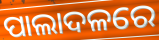
ପାଲାଦଳରେ